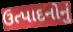
ઉત્પાદનોનું